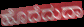
ಹೊದೆದುದಾ